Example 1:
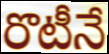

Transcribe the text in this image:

రొటీనే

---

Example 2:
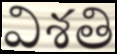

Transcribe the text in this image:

విశతి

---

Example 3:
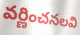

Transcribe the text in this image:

వర్ణించనలవి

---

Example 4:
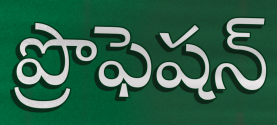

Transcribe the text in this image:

ప్రొఫెషన్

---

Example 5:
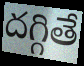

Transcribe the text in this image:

దగ్గితే